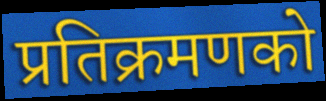
प्रतिक्रमणको